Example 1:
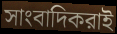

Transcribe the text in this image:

সাংবাদিকরাই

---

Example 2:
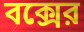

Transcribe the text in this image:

বক্সের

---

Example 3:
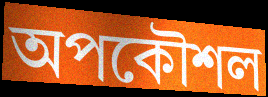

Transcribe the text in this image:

অপকৌশল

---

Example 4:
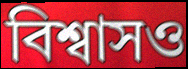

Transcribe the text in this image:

বিশ্বাসও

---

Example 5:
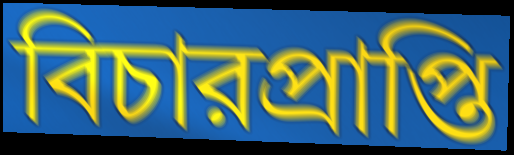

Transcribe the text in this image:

বিচারপ্রাপ্তি